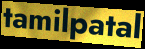
tamilpatal